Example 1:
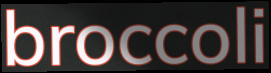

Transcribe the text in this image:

broccoli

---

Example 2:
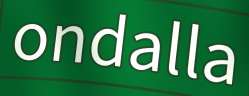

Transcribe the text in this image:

ondalla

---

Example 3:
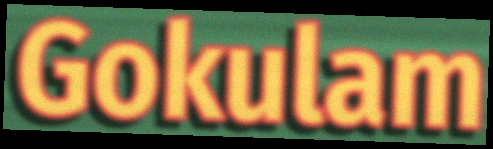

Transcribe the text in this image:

Gokulam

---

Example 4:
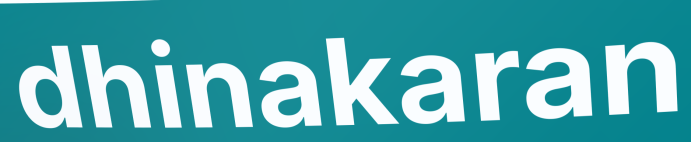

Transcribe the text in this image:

dhinakaran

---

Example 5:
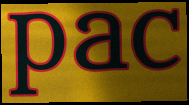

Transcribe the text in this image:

pac